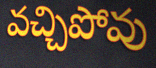
వచ్చిపోవు